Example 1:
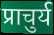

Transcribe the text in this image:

प्राचुर्य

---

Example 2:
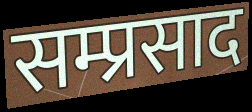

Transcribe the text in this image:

सम्प्रसाद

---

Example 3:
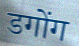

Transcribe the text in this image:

डगोंग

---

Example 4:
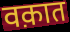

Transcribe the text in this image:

वक़ात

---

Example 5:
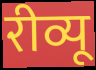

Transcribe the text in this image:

रीव्यू